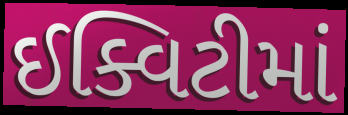
ઈક્વિટીમાં